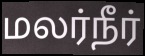
மலர்நீர்